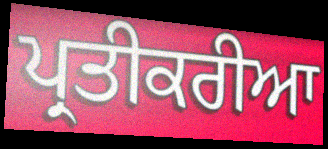
ਪ੍ਰਤੀਕਰੀਆ